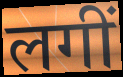
लगीं